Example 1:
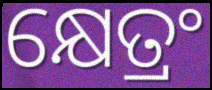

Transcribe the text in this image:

କ୍ଷେତ୍ରଂ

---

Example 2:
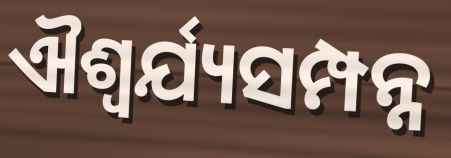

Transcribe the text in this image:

ଐଶ୍ୱର୍ଯ୍ୟସମ୍ପନ୍ନ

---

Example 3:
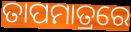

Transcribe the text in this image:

ତାପମାତ୍ରରେ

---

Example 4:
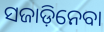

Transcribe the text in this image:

ସଜାଡ଼ିନେବା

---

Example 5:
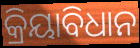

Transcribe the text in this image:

କ୍ରିୟାବିଧାନ